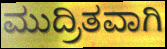
ಮುದ್ರಿತವಾಗಿ